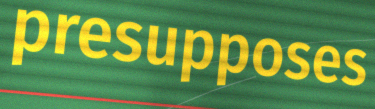
presupposes